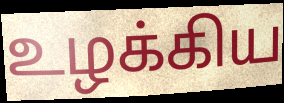
உழக்கிய